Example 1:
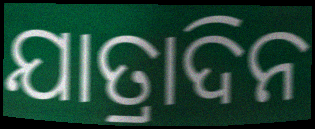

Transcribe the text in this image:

ଯାତ୍ରାଦିନ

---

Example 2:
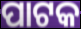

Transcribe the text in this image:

ପାଟକ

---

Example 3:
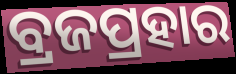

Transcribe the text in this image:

ବ୍ରଜପ୍ରହାର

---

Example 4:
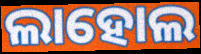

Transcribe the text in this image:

ଲାହୋଲ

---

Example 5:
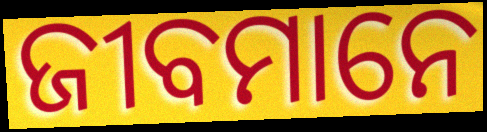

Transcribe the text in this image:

ଜୀବମାନେ